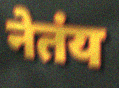
नेतंय